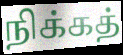
நிக்கத்